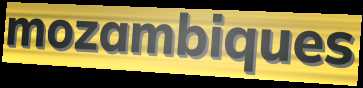
mozambiques